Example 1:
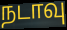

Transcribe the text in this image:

நடாவு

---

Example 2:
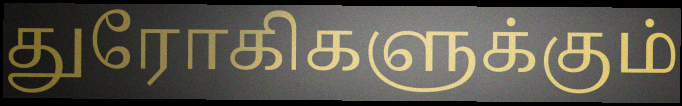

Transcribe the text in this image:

துரோகிகளுக்கும்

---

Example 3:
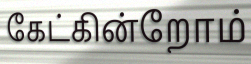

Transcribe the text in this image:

கேட்கின்றோம்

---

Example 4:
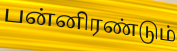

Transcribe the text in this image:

பன்னிரண்டும்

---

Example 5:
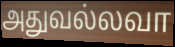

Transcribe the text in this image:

அதுவல்லவா